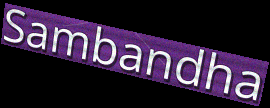
Sambandha